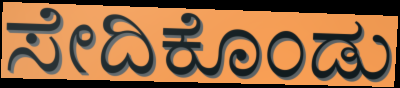
ಸೇದಿಕೊಂಡು